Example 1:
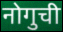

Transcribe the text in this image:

नोगुची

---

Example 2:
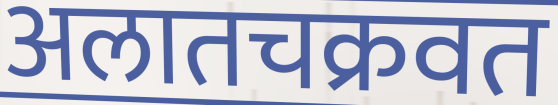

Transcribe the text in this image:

अलातचक्रवत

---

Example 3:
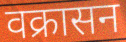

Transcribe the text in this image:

वक्रासन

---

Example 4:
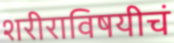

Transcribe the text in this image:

शरीराविषयीचं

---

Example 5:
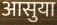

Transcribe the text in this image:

आसुया